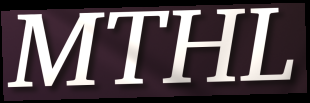
MTHL